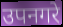
उपनगरे